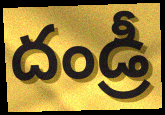
దండ్రీ